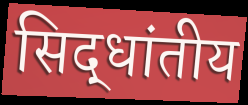
सिद्धांतीय